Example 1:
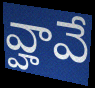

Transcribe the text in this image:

వ్హావే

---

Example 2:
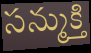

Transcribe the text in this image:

సన్ముక్తి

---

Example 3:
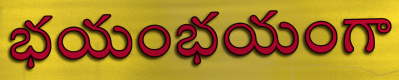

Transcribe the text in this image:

భయంభయంగా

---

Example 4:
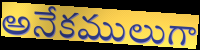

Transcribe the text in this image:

అనేకములుగా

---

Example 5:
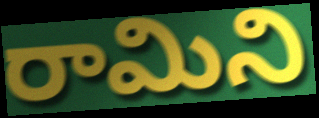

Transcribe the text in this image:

రామిని